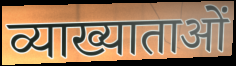
व्याख्याताओं